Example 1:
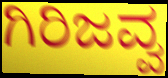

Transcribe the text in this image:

ಗಿರಿಜವ್ವ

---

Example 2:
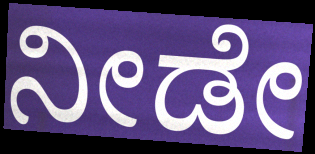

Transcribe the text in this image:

ನೀಡೇ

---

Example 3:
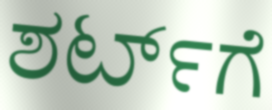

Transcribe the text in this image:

ಶರ್ಟ್‌ಗೆ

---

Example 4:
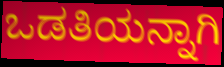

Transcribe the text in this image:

ಒಡತಿಯನ್ನಾಗಿ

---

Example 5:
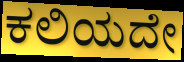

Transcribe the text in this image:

ಕಲಿಯದೇ